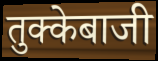
तुक्केबाजी